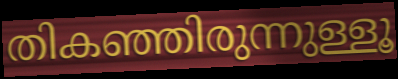
തികഞ്ഞിരുന്നുള്ളൂ